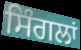
ਸਿੰਗਲਾਂ